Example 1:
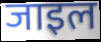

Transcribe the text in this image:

जाइल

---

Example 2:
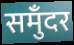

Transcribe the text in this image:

समुँदर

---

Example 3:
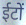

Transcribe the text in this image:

ईटों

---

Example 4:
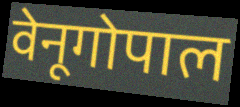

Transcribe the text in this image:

वेनूगोपाल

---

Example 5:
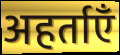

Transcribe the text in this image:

अहर्ताएँ